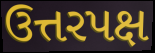
ઉત્તરપક્ષ